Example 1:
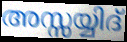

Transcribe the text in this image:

അസ്സയ്യിദ്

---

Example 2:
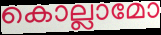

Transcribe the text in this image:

കൊല്ലാമോ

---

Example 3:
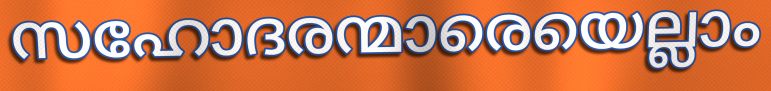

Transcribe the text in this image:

സഹോദരന്മാരെയെല്ലാം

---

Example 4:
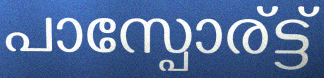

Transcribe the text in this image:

പാസ്പോര്ട്ട്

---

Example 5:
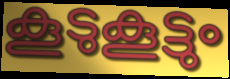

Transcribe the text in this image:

കൂടുകൂട്ടും